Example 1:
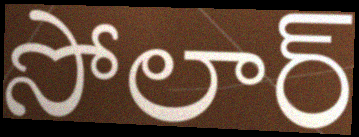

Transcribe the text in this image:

సోలార్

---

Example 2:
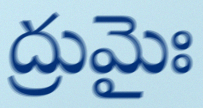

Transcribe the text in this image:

ద్రుమైః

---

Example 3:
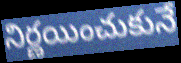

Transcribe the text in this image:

నిర్ణయించుకునే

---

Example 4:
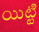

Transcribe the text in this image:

యిట్టి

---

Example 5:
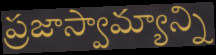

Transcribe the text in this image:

ప్రజాస్వామ్యాన్ని